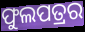
ଫୁଲପତ୍ରର